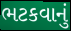
ભટકવાનું